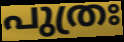
പുത്രഃ